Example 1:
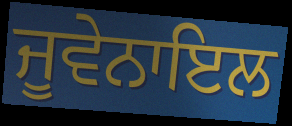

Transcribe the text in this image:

ਜੂਵੇਨਾਇਲ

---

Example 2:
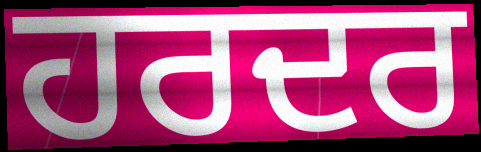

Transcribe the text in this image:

ਹਰਦਰ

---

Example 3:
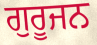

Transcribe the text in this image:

ਗੁਰੂਜਨ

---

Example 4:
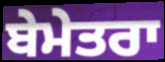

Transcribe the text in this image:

ਬੇਮੇਤਰਾ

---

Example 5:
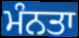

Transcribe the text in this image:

ਮੰਨਤਾ